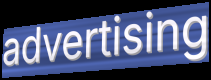
advertising